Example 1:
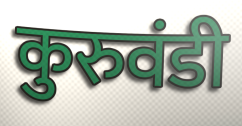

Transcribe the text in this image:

कुरुवंडी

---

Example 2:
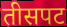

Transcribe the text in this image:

तीसपट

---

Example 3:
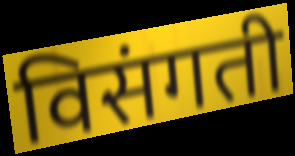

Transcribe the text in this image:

विसंगती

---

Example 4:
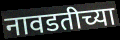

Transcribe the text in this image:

नावडतीच्या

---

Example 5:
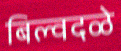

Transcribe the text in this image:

बिल्वदळे